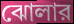
ঝোলার